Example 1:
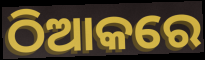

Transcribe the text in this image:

ଠିଆକରେ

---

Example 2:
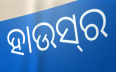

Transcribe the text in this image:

ହାଉସ୍‌ର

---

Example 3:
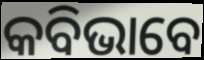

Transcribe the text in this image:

କବିଭାବେ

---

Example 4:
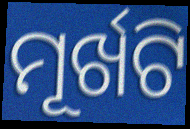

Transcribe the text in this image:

ମୂର୍ଖଟି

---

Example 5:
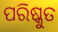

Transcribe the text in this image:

ପରିଷ୍କୁତ